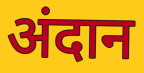
अंदान